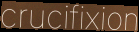
crucifixion